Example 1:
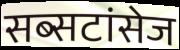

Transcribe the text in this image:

सब्सटांसेज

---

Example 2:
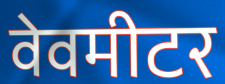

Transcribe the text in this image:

वेवमीटर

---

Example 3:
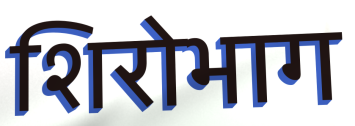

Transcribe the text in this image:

शिरोभाग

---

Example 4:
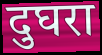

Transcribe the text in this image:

दुघरा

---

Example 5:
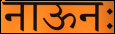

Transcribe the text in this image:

नाऊनः